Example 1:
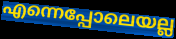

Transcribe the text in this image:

എന്നെപ്പോലെയല്ല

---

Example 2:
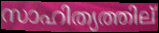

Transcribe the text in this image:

സാഹിത്യത്തില്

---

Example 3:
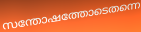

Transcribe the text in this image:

സന്തോഷത്തോടെതന്നെ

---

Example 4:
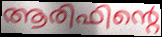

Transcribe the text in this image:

ആരിഫിന്റെ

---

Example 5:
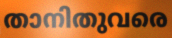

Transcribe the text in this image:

താനിതുവരെ